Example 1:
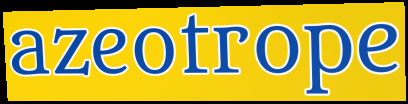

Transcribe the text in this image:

azeotrope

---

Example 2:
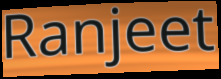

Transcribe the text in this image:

Ranjeet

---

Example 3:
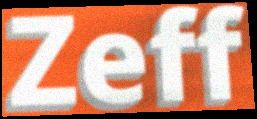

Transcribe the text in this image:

Zeff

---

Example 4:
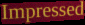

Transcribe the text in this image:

Impressed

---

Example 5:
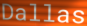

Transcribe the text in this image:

Dallas